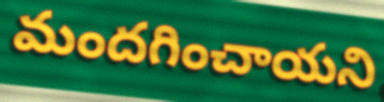
మందగించాయని